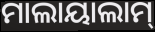
ମାଲାୟାଲାମ୍